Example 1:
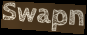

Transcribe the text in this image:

Swapn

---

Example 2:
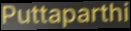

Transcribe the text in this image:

Puttaparthi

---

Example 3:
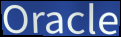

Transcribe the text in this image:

Oracle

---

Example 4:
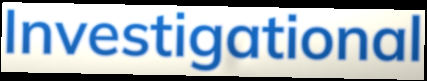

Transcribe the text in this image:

Investigational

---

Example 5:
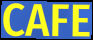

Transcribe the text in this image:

CAFE